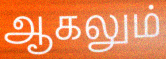
ஆகலும்